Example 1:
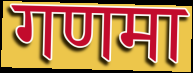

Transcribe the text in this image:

गणमा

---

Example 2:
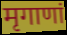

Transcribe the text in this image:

मृगाणां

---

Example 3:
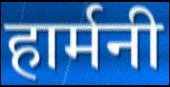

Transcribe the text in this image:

हार्मनी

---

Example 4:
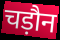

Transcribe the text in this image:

चड़ौन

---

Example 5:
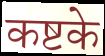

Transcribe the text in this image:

कष्टके